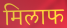
मिलाफ